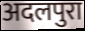
अदलपुरा